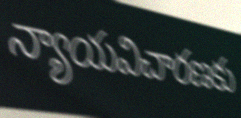
న్యాయవిచారణకు